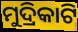
ମୁଦ୍ରିକାଟି